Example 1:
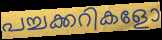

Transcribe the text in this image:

പച്ചക്കറികളോ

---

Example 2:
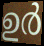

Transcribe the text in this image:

ഉർ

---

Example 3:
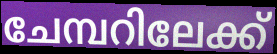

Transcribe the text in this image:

ചേമ്പറിലേക്ക്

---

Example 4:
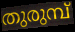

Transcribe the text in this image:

തുരുമ്പ്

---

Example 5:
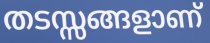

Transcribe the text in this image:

തടസ്സങ്ങളാണ്